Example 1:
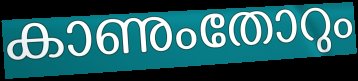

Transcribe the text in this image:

കാണുംതോറും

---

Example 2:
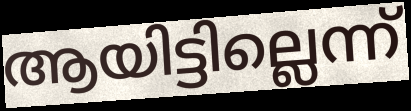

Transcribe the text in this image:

ആയിട്ടില്ലെന്ന്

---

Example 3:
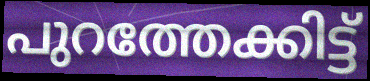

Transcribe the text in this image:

പുറത്തേക്കിട്ട്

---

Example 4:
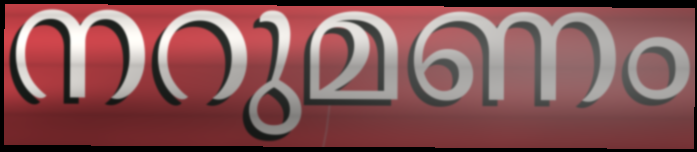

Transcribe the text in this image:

നറുമണം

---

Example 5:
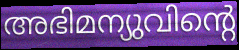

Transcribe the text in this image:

അഭിമന്യുവിന്റെ